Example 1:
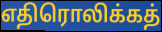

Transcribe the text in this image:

எதிரொலிக்கத்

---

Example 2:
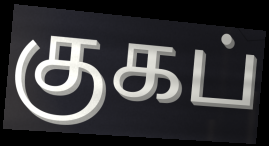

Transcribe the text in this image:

குகப்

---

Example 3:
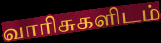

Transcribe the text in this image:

வாரிசுகளிடம்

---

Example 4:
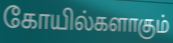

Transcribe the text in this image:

கோயில்களாகும்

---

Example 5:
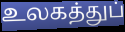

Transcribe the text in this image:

உலகத்துப்